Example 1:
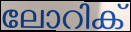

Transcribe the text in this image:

ലോറിക്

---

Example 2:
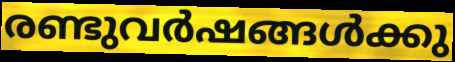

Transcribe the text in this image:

രണ്ടുവർഷങ്ങൾക്കു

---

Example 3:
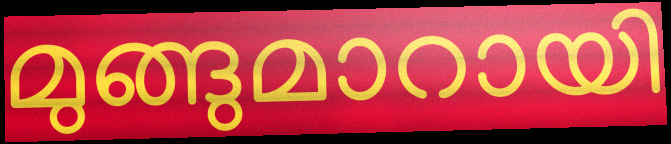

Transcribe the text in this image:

മുങ്ങുമാറായി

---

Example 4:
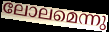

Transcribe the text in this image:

ലോലമെന്നു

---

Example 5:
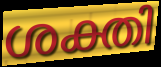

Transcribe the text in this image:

ശക്തി